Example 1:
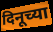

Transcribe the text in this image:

दिनूच्या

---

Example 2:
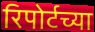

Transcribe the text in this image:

रिपोर्टच्या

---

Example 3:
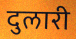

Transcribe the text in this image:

दुलारी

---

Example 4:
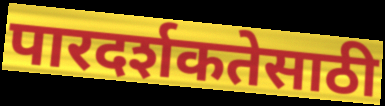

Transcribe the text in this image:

पारदर्शकतेसाठी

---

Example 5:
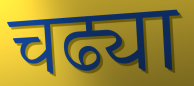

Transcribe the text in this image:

चढ्या